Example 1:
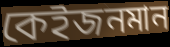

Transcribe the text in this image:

কেইজনমান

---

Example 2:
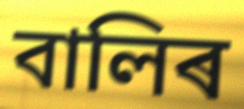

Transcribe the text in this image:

বালিৰ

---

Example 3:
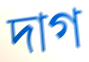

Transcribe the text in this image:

দাগ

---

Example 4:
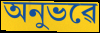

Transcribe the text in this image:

অনুভৱে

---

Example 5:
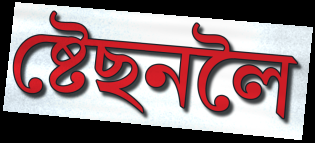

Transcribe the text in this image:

ষ্টেছনলৈ